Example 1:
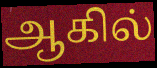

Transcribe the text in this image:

ஆகில்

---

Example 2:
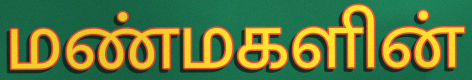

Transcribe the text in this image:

மண்மகளின்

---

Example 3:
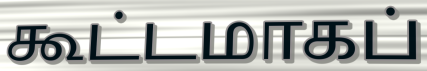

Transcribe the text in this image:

கூட்டமாகப்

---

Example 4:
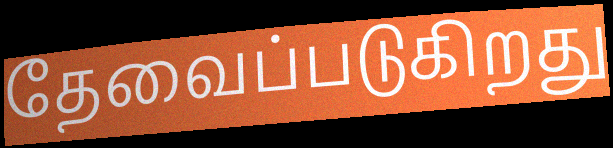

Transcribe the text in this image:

தேவைப்படுகிறது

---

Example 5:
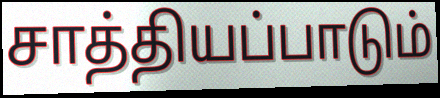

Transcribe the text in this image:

சாத்தியப்பாடும்